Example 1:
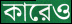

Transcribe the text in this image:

কারেও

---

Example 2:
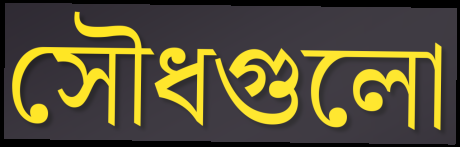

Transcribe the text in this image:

সৌধগুলো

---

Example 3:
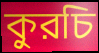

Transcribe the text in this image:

কুরচি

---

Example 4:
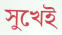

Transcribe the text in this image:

সুখেই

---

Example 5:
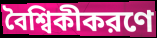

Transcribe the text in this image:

বৈশ্বিকীকরণে